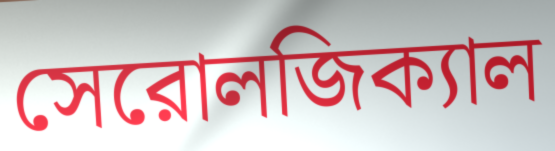
সেরোলজিক্যাল